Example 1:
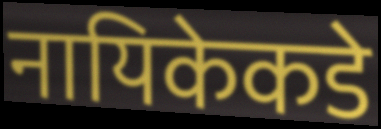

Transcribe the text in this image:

नायिकेकडे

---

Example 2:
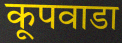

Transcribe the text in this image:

कूपवाडा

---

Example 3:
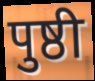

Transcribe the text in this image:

पुष्ठी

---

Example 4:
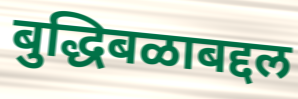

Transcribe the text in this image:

बुद्धिबळाबद्दल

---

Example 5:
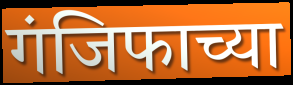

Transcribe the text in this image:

गंजिफाच्या